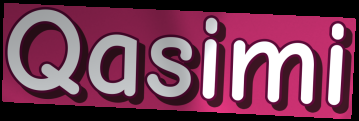
Qasimi